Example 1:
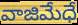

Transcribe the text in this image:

వాజిమేధే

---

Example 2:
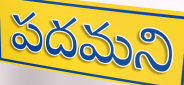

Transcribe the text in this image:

పదమని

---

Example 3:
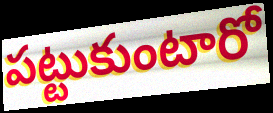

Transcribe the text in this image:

పట్టుకుంటారో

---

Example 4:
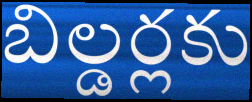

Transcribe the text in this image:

బిల్డర్లకు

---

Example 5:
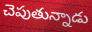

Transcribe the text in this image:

చెపుతున్నాడు